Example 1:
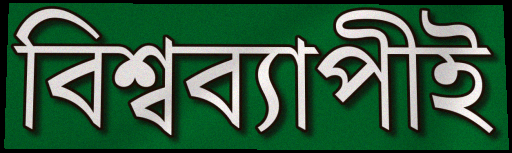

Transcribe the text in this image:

বিশ্বব্যাপীই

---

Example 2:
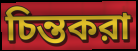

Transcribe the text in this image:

চিন্তকরা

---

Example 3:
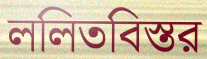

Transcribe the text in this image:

ললিতবিস্তর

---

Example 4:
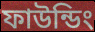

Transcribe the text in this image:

ফাউন্ডিং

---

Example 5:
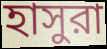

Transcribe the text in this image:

হাসুরা